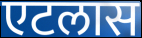
एटलास